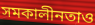
সমকালীনতাও